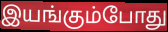
இயங்கும்போது